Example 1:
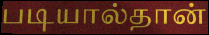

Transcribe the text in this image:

படியால்தான்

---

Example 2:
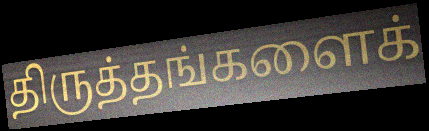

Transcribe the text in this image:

திருத்தங்களைக்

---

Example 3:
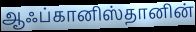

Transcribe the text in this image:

ஆஃப்கானிஸ்தானின்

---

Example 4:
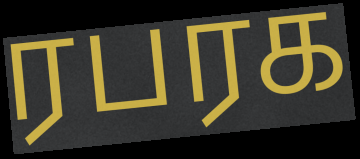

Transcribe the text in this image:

ரபரக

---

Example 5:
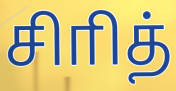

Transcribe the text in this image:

சிரித்